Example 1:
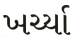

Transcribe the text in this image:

ખર્ચ્યા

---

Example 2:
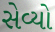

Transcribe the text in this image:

સેવ્યો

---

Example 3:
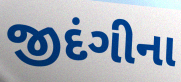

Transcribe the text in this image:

જીદંગીના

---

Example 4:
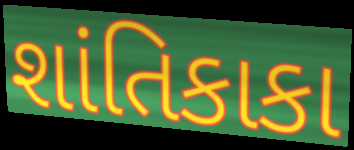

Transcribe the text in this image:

શાંતિકાકા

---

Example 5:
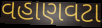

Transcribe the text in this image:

વહાણવટા